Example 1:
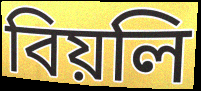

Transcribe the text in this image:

বিয়লি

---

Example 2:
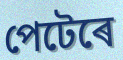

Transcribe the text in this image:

পেটেৰে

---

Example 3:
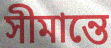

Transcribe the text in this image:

সীমান্তে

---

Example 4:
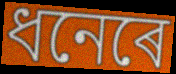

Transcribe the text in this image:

ধনেৰে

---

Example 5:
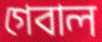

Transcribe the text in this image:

গেবাল